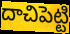
దాచిపెట్టి